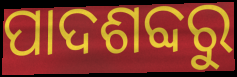
ପାଦଶବ୍ଦରୁ